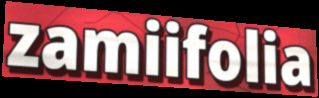
zamiifolia